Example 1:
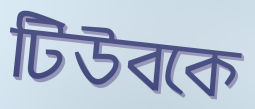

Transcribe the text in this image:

টিউবকে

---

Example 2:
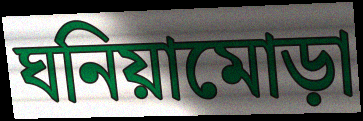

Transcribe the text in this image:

ঘনিয়ামোড়া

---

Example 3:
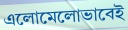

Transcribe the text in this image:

এলোমেলোভাবেই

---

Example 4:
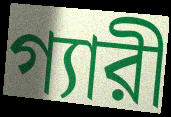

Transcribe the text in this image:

গ্যারী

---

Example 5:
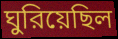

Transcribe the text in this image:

ঘুরিয়েছিল